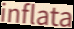
inflata